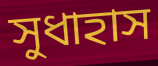
সুধাহাস